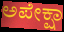
ಅಪೇಕ್ಷಾ